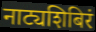
नाट्यशिबिरं